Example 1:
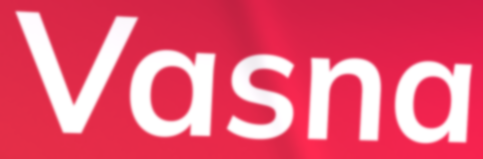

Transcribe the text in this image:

Vasna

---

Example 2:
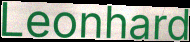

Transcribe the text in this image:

Leonhard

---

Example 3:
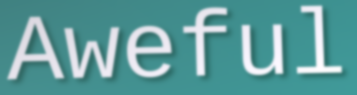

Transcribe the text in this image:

Aweful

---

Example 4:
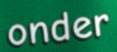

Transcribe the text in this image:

onder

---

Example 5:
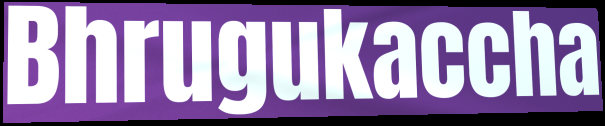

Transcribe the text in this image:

Bhrugukaccha